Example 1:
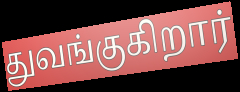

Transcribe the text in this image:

துவங்குகிறார்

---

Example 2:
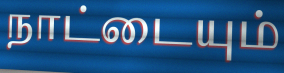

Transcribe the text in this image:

நாட்டையும்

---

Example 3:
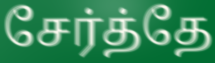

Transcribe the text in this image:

சேர்த்தே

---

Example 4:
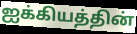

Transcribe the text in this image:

ஐக்கியத்தின்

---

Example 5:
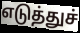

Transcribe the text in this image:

எடுத்துச்